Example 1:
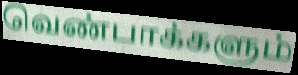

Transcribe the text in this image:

வெண்பாக்களும்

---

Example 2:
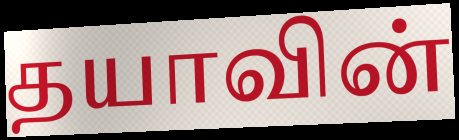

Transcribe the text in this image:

தயாவின்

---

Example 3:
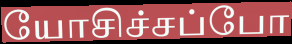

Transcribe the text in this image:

யோசிச்சப்போ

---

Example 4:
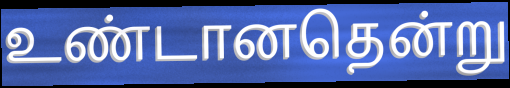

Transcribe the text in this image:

உண்டானதென்று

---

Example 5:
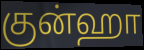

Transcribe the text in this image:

குன்ஹா